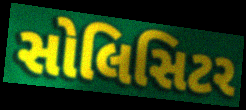
સોલિસિટર